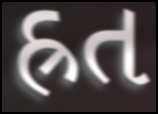
હ્રત